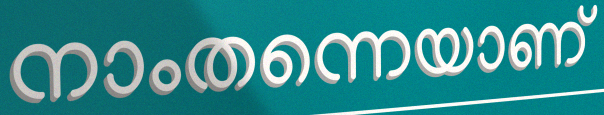
നാംതന്നെയാണ്